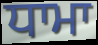
ਧਾਮਾ